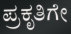
ಪ್ರಕೃತಿಗೇ